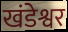
खंडेश्वर